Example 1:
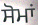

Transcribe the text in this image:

ਸੋਮਾਂ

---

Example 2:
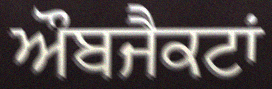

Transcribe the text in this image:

ਔਬਜੈਕਟਾਂ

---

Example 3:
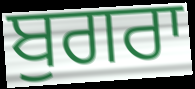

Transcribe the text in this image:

ਬੁਗਰਾ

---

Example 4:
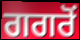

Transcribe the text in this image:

ਗਗਰੋਂ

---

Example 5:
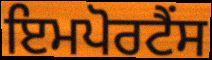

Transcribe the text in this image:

ਇਮਪੋਰਟੈਂਸ